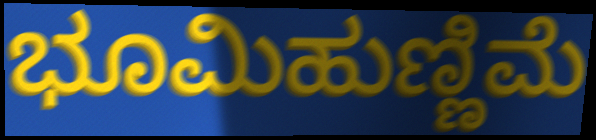
ಭೂಮಿಹುಣ್ಣಿಮೆ